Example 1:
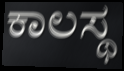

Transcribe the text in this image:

ಕಾಲಸ್ಥ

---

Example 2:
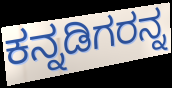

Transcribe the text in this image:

ಕನ್ನಡಿಗರನ್ನ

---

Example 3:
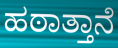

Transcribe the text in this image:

ಹಠಾತ್ತಾನೆ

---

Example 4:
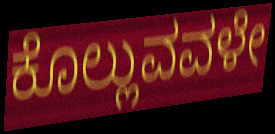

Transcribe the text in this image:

ಕೊಲ್ಲುವವಳೇ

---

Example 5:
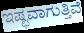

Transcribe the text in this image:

ಇಷ್ಟವಾಗುತ್ತಿವೆ